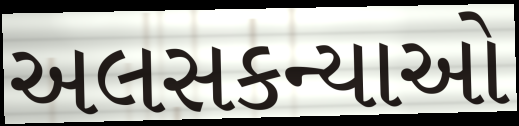
અલસકન્યાઓ